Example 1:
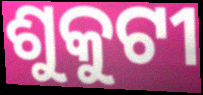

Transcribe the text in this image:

ଶୁକୁଟୀ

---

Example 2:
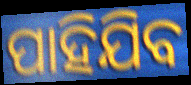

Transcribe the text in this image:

ପାହିଯିବ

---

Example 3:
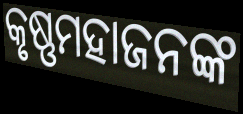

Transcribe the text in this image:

କୃଷ୍ଣମହାଜନଙ୍କ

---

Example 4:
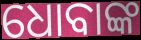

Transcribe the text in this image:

ଧୋବାଙ୍କ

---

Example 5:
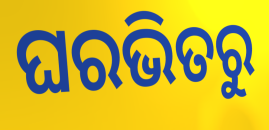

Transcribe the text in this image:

ଘରଭିତରୁ